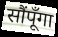
सौंपूँगा